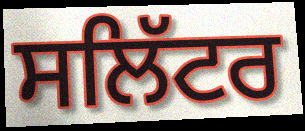
ਸਲਿੱਟਰ